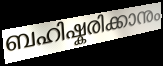
ബഹിഷ്കരിക്കാനും